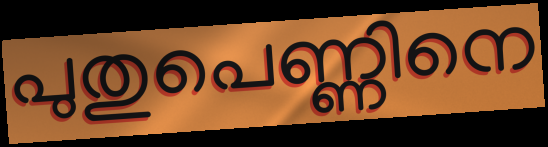
പുതുപെണ്ണിനെ